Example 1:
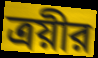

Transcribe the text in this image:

ত্রয়ীর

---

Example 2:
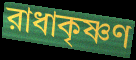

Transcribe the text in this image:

রাধাকৃষ্ণণ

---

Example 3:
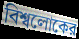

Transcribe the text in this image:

বিশ্বলোকের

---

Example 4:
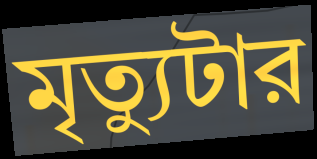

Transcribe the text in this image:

মৃত্যুটার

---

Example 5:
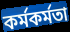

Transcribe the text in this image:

কর্মকর্মতা